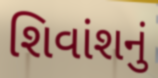
શિવાંશનું